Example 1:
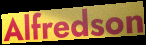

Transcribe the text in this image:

Alfredson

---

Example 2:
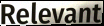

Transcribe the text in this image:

Relevant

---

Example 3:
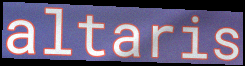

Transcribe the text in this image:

altaris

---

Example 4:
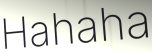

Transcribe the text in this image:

Hahaha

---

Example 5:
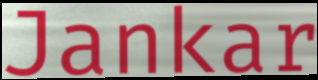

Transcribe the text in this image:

Jankar